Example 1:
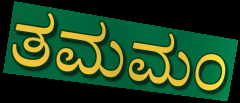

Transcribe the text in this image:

ತಮಮಂ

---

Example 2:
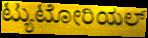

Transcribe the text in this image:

ಟ್ಯುಟೋರಿಯಲ್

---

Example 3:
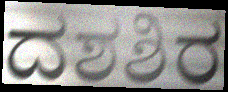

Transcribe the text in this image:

ದಶಶಿರ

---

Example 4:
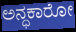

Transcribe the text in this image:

ಅನ್ಧಕಾರೋ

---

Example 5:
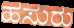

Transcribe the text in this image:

ಹಸುರು